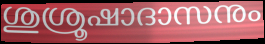
ശുശ്രൂഷാദാസനും